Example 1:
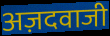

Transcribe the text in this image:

अज़दवाजी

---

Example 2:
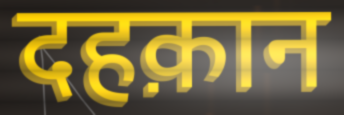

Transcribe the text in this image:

दहक़ान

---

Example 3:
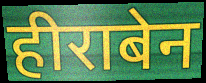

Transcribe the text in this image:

हीराबेन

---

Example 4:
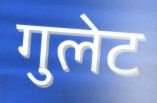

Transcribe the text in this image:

गुलेट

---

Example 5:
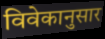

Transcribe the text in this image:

विवेकानुसार